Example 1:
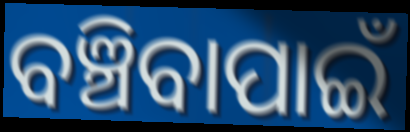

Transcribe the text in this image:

ବଞ୍ଚିବାପାଇଁ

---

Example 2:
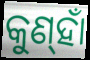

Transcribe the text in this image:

କୁଣ୍‌ହାଁ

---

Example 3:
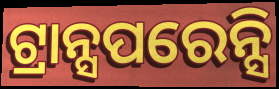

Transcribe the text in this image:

ଟ୍ରାନ୍ସପରେନ୍ସି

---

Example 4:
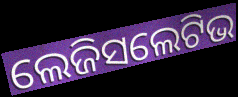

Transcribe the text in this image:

ଲେଜିସଲେଟିଭ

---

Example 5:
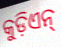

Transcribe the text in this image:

କୁଡ଼ିଏନ୍